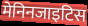
मेनिनजाइटिस